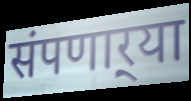
संपणार्या